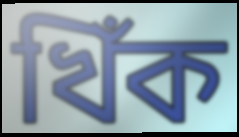
খিঁক